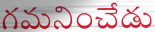
గమనించేడు